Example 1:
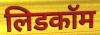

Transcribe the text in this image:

लिडकॉम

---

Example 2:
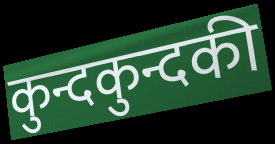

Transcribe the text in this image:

कुन्दकुन्दकी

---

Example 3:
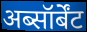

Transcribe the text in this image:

अब्सॉर्बेंट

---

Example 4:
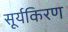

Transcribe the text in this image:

सूर्यकिरण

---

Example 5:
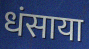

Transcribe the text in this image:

धंसाया